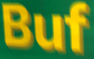
Buf